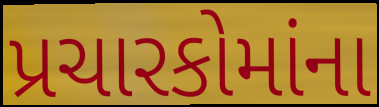
પ્રચારકોમાંના